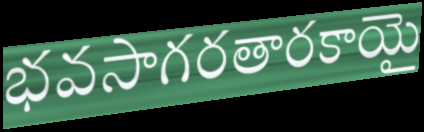
భవసాగరతారకాయై